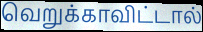
வெறுக்காவிட்டால்